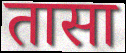
तासा